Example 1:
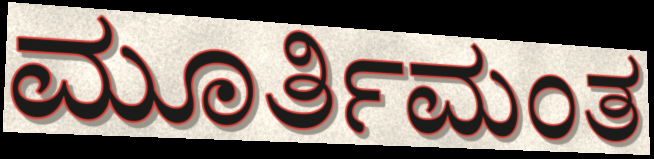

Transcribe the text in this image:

ಮೂರ್ತಿಮಂತ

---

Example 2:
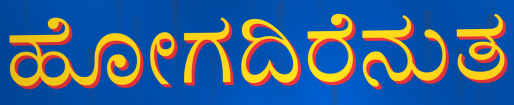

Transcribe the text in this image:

ಹೋಗದಿರೆನುತ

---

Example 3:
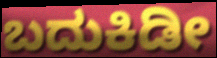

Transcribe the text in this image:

ಬದುಕಿಡೀ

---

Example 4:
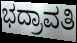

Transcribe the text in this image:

ಭದ್ರಾವತಿ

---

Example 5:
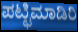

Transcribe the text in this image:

ಪಟ್ಟಿಮಾಡಿರಿ